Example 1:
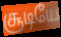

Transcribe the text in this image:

சூடியே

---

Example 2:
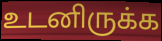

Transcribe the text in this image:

உடனிருக்க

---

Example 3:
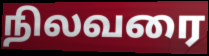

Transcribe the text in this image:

நிலவரை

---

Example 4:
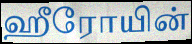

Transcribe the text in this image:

ஹீரோயின்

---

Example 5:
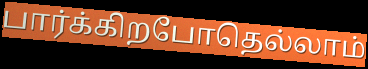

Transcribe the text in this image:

பார்க்கிறபோதெல்லாம்